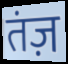
तंज़